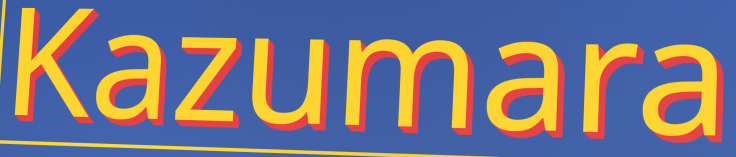
Kazumara